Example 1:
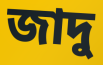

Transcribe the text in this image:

জাদু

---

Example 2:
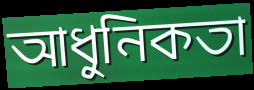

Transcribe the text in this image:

আধুনিকতা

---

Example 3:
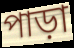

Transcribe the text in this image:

পাড়া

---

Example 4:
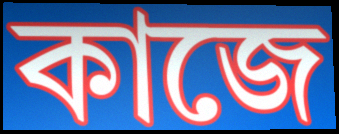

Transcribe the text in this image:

কাজে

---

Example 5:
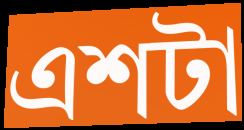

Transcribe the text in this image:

এশটা